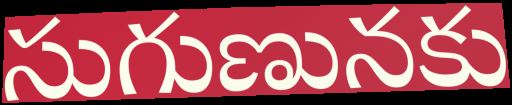
సుగుణునకు